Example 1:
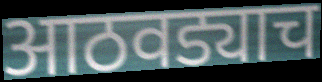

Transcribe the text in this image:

आठवड्याच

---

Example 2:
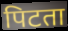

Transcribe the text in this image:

पिटता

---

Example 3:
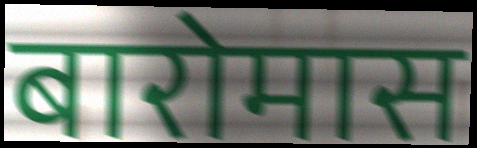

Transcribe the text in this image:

बारोमास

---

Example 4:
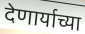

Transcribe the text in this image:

देणार्याच्या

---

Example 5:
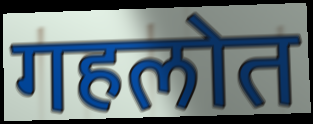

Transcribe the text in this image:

गहलोत